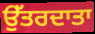
ਉੱਤਰਦਾਤਾ